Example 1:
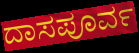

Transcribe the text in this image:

ದಾಸಪೂರ್ವ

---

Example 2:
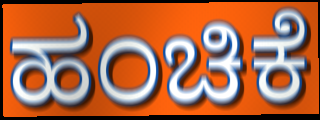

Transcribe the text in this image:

ಹಂಚಿಕೆ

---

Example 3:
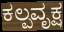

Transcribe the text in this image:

ಕಲ್ಪವೃಕ್ಷ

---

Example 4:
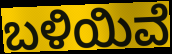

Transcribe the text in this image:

ಬಳಿಯಿವೆ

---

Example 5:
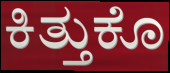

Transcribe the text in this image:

ಕಿತ್ತುಕೊ